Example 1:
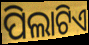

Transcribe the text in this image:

ପିଲାଟିଏ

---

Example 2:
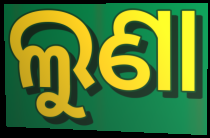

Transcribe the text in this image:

ଲୁଣା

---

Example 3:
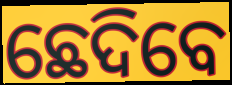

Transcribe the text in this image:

ଛେଦିବେ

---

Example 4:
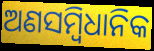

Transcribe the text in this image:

ଅଣସମ୍ବିଧାନିକ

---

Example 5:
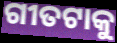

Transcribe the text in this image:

ଗୀତଟାକୁ